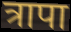
त्रापा